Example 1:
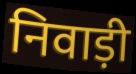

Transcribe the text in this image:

निवाड़ी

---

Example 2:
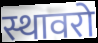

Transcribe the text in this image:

स्थावरो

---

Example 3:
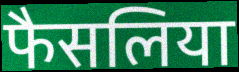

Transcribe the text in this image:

फैसलिया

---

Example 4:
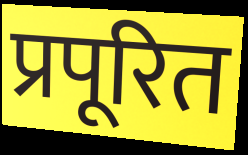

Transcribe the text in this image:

प्रपूरित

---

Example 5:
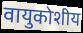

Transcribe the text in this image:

वायुकोशीय